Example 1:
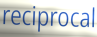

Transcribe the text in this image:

reciprocal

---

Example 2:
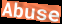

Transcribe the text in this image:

Abuse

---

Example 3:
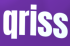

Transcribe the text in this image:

qriss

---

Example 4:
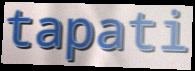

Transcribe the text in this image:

tapati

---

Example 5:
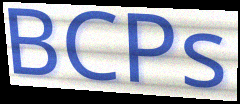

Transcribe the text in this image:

BCPs